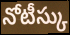
నోటీస్కు